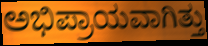
ಅಭಿಪ್ರಾಯವಾಗಿತ್ತು